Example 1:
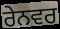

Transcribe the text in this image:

ਰੇਨਵਰ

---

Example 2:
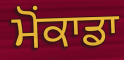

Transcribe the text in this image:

ਮੋਂਕਾਡਾ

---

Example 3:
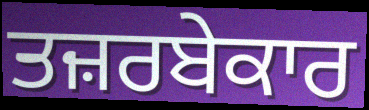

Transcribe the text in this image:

ਤਜ਼ਰਬੇਕਾਰ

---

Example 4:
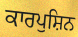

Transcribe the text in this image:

ਕਾਰਪੁਸ਼ਿਨ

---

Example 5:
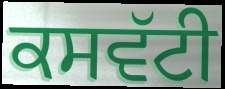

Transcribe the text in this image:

ਕਸਵੱਟੀ